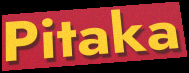
Pitaka